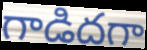
గాడిదగా